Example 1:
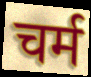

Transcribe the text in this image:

चर्म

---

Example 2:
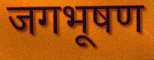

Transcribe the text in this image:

जगभूषण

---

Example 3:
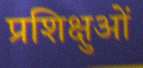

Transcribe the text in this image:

प्रशिक्षुओं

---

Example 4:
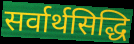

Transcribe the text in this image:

सर्वार्थसिद्धि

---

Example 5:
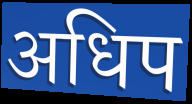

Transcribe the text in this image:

अधिप